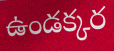
ఉండక్కర